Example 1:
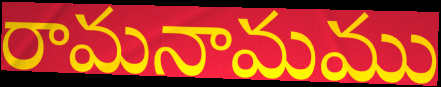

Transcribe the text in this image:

రామనామము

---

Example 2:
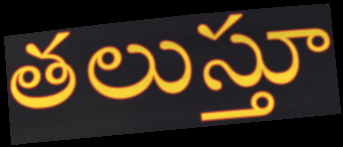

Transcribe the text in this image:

తలుస్తూ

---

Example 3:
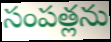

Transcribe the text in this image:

సంపత్లను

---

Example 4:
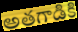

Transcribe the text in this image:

అతగాడికి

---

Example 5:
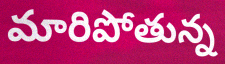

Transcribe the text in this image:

మారిపోతున్న